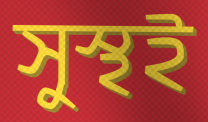
সুস্থই